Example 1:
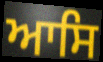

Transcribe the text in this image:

ਆਸਿ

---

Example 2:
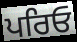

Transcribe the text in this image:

ਪਰਿਓ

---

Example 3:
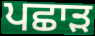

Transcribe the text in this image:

ਪਛਾੜ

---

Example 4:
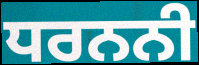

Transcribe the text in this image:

ਧਰਨਨੀ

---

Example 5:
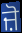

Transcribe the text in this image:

ਜ਼ੋ